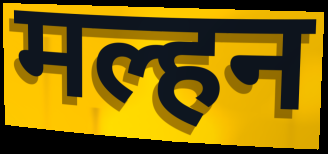
मल्हन